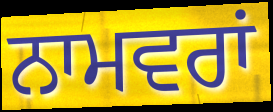
ਨਾਮਵਰਾਂ